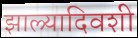
झाल्यादिवशी